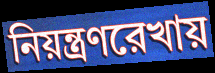
নিয়ন্ত্রণরেখায়